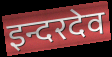
इन्दरदेव